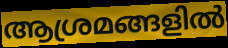
ആശ്രമങ്ങളിൽ